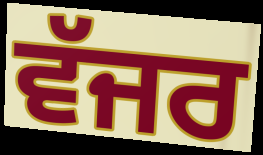
ਵੱਜਰ